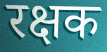
रक्षक